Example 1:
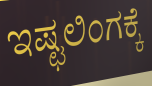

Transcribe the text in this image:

ಇಷ್ಟಲಿಂಗಕ್ಕೆ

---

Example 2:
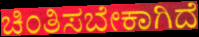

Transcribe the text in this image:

ಚಿಂತಿಸಬೇಕಾಗಿದೆ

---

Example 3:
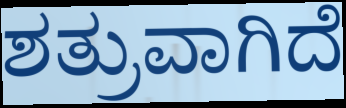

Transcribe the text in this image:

ಶತ್ರುವಾಗಿದೆ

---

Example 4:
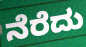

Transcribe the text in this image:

ನೆರೆದು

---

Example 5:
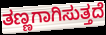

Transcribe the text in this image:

ತಣ್ಣಗಾಗಿಸುತ್ತದೆ